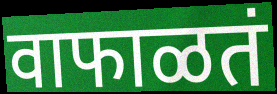
वाफाळतं